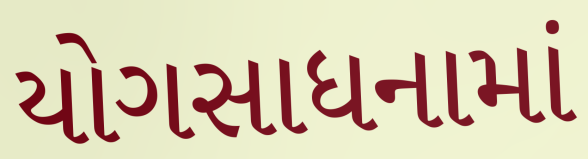
યોગસાધનામાં